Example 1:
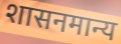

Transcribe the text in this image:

शासनमान्य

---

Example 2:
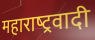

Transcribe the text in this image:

महाराष्ट्रवादी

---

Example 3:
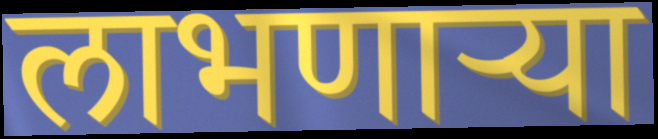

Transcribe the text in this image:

लाभणाऱ्या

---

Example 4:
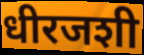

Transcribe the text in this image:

धीरजशी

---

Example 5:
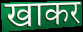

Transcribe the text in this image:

खाकर